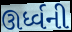
ઊર્ધ્વની